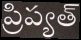
ప్రిప్యత్